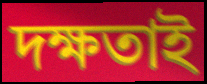
দক্ষতাই